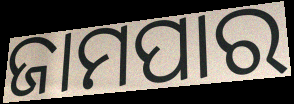
ଜାମପାର